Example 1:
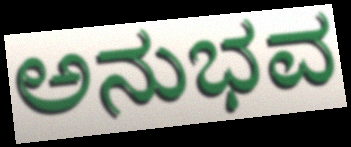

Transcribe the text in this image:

ಅನುಭವ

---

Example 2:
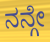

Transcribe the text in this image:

ನನ್ಗೇ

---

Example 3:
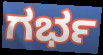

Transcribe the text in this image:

ಗರ್ಭ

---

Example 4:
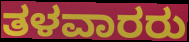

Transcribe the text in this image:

ತಳವಾರರು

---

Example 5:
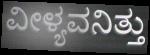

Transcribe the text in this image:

ವೀಳ್ಯವನಿತ್ತು